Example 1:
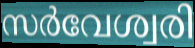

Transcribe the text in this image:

സർവേശ്വരി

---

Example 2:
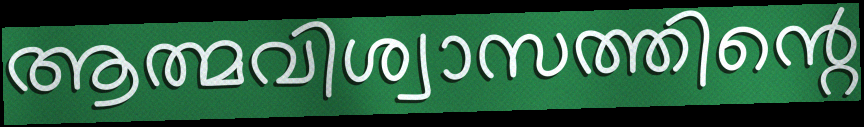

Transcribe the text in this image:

ആത്മവിശ്വാസത്തിന്റെ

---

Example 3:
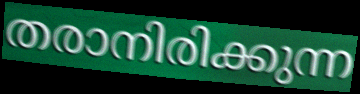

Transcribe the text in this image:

തരാനിരിക്കുന്ന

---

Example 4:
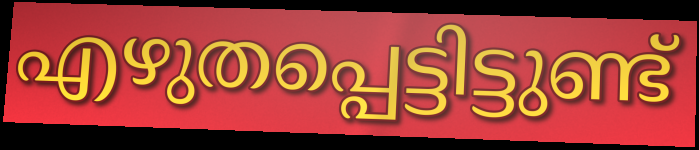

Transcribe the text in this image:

എഴുതപ്പെട്ടിട്ടുണ്ട്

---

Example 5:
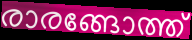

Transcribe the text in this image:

രാരങ്ങോത്ത്